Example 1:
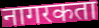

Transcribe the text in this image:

नागरकता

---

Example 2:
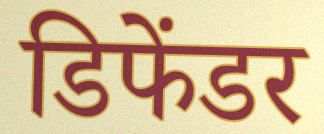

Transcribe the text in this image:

डिफेंडर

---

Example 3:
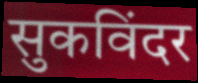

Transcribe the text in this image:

सुकविंदर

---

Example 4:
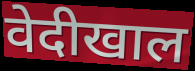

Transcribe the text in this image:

वेदीखाल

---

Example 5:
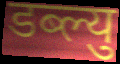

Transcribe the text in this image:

डब्ल्यु